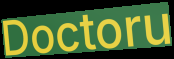
Doctoru